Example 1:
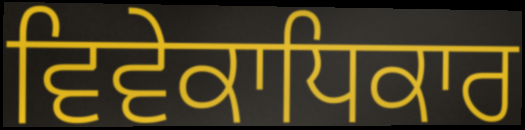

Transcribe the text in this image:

ਵਿਵੇਕਾਧਿਕਾਰ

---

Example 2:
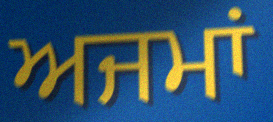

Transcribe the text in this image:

ਅਜਮਾਂ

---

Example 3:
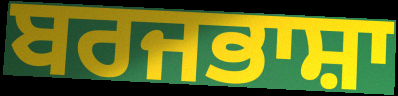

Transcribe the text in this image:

ਬਰਜਭਾਸ਼ਾ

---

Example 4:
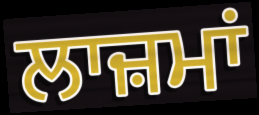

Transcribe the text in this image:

ਲਾਜ਼ਮਾਂ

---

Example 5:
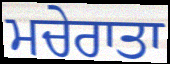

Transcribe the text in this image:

ਮਚੇਰਾਤਾ